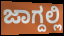
ಜಾಗ್ದಲ್ಲಿ